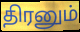
திரனும்